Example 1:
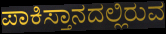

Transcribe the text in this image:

ಪಾಕಿಸ್ತಾನದಲ್ಲಿರುವ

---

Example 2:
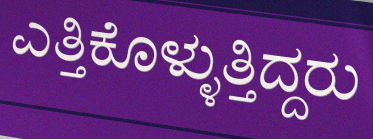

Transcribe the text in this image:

ಎತ್ತಿಕೊಳ್ಳುತ್ತಿದ್ದರು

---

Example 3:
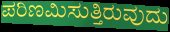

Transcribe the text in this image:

ಪರಿಣಮಿಸುತ್ತಿರುವುದು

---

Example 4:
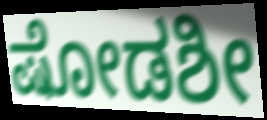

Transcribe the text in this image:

ಷೋಡಶೀ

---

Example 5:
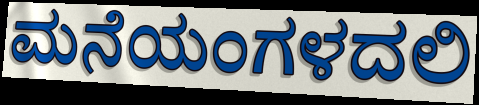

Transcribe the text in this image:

ಮನೆಯಂಗಳದಲಿ